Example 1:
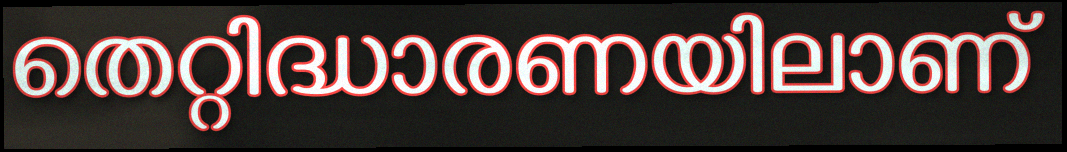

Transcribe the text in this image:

തെറ്റിദ്ധാരണയിലാണ്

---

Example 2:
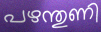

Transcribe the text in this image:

പഴന്തുണി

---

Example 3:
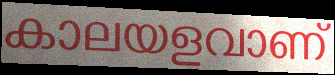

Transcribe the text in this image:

കാലയളവാണ്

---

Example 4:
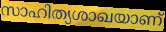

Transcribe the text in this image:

സാഹിത്യശാഖയാണ്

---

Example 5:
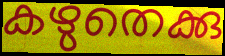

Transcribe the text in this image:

കഴുതെക്കു